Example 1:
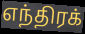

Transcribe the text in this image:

எந்திரக்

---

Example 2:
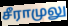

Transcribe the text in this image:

சீராமுலு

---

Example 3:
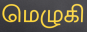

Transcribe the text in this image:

மெழுகி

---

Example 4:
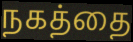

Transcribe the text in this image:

நகத்தை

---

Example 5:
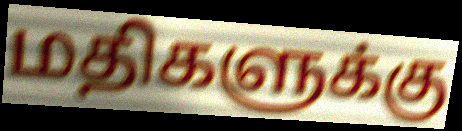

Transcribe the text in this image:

மதிகளுக்கு